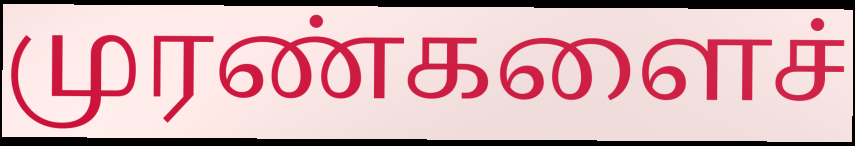
முரண்களைச்